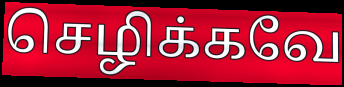
செழிக்கவே